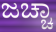
ಜಚ್ಚಾ